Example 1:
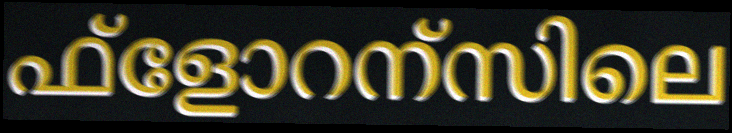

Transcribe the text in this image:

ഫ്ളോറന്സിലെ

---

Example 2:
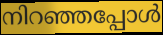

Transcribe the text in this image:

നിറഞ്ഞപ്പോൾ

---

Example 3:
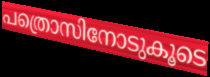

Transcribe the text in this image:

പത്രൊസിനോടുകൂടെ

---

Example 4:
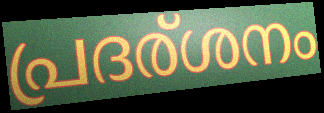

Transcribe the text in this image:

പ്രദര്ശനം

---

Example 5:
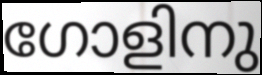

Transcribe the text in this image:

ഗോളിനു